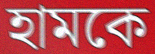
হামকে